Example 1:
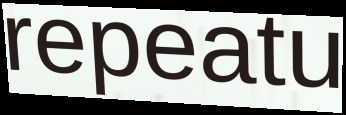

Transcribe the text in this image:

repeatu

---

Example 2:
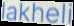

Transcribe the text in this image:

lakheli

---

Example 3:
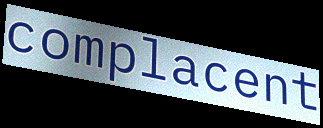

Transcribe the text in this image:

complacent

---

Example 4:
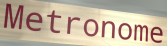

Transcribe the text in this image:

Metronome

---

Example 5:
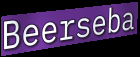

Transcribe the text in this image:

Beerseba